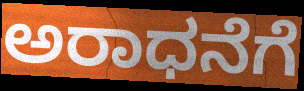
ಅರಾಧನೆಗೆ